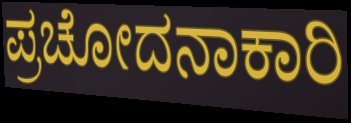
ಪ್ರಚೋದನಾಕಾರಿ